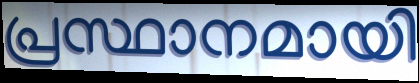
പ്രസ്ഥാനമായി